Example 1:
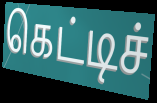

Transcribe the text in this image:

கெட்டிச்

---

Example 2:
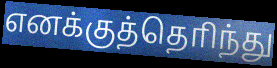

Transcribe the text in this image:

எனக்குத்தெரிந்து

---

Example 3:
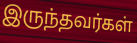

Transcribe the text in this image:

இருந்தவர்கள்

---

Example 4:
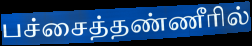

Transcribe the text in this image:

பச்சைத்தண்ணீரில்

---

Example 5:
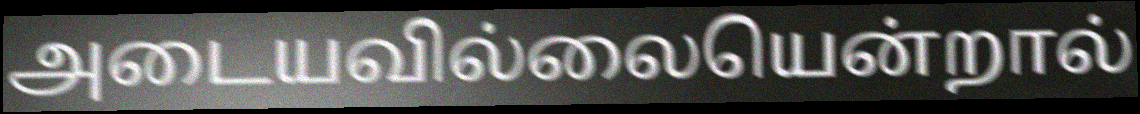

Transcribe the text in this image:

அடையவில்லையென்றால்